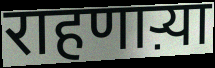
राहणाऱ्‍या